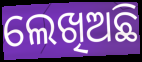
ଲେଖିଅଛି